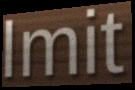
Imit